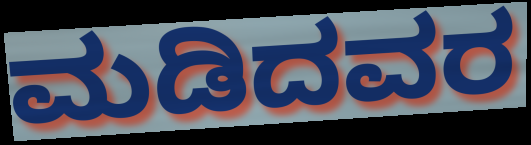
ಮಡಿದವರ